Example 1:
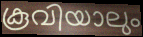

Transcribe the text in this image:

കൂവിയാലും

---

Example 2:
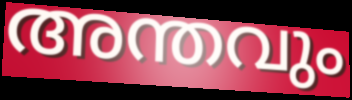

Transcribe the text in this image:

അന്തവും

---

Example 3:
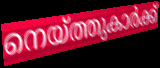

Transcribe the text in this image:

നെയ്ത്തുകാർക്ക്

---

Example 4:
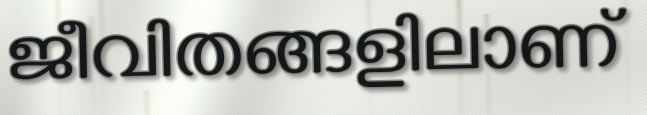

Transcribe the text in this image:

ജീവിതങ്ങളിലാണ്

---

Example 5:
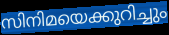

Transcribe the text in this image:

സിനിമയെക്കുറിച്ചും